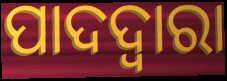
ପାଦଦ୍ଵାରା